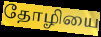
தோழியை